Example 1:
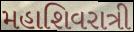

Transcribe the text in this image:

મહાશિવરાત્રી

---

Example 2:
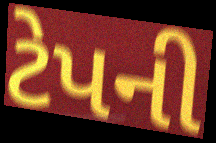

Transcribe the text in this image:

ટેપની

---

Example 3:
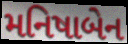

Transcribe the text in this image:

મનિષાબેન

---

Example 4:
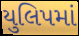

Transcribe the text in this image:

યુલિપમાં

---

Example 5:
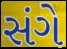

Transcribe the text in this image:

સંગે